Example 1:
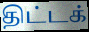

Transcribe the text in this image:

திட்டக்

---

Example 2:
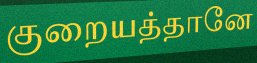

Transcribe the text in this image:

குறையத்தானே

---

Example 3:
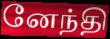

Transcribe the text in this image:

னேந்தி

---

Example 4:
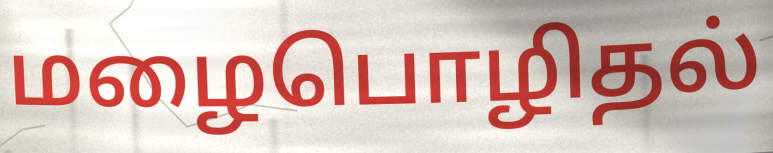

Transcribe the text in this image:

மழைபொழிதல்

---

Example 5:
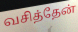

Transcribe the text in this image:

வசித்தேன்